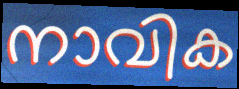
നാവിക